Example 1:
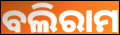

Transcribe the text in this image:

ବଲିରାମ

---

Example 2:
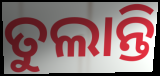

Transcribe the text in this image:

ତୁଲାନ୍ତି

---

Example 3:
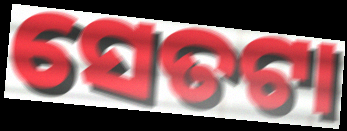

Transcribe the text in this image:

ସେତଟା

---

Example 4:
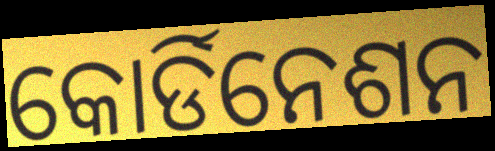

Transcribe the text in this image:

କୋର୍ଡିନେଶନ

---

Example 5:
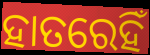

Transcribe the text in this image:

ହାତରେହିଁ